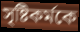
সৃষ্টিকর্মকে